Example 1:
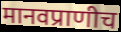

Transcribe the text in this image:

मानवप्राणीच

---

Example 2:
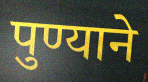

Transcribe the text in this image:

पुण्याने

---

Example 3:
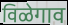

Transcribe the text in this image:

विळेगाव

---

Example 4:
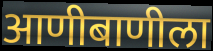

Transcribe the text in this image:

आणीबाणीला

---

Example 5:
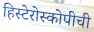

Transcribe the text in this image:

हिस्टेरोस्कोपीची